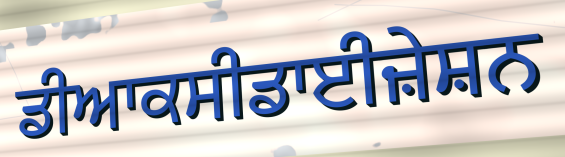
ਡੀਆਕਸੀਡਾਈਜ਼ੇਸ਼ਨ